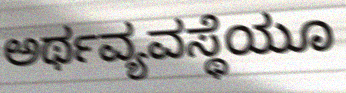
ಅರ್ಥವ್ಯವಸ್ಥೆಯೂ